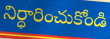
నిర్ధారించుకోండి